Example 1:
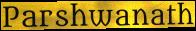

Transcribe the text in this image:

Parshwanath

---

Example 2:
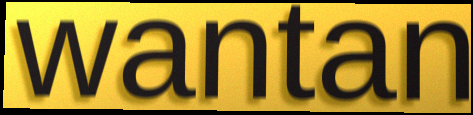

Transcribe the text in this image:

wantan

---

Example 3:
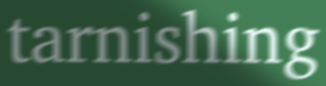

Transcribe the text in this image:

tarnishing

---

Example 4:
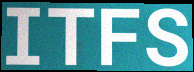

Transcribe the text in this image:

ITFS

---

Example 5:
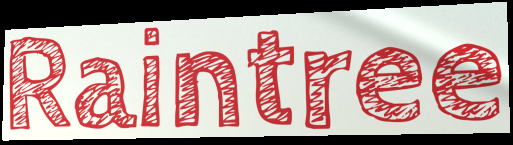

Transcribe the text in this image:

Raintree